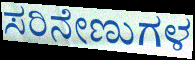
ಸರಿನೇಣುಗಳ